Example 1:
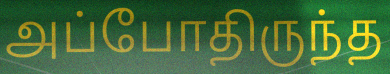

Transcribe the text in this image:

அப்போதிருந்த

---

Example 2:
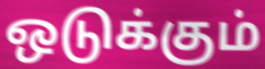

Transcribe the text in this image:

ஒடுக்கும்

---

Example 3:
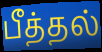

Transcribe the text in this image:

பீத்தல்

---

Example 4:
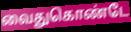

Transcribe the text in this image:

வைதுகொண்டே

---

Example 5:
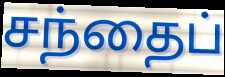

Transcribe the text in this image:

சந்தைப்